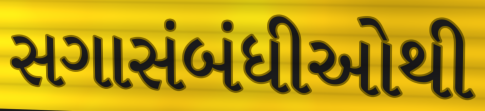
સગાસંબંધીઓથી